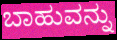
ಬಾಹುವನ್ನು